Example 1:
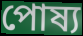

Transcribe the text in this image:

পোষ্য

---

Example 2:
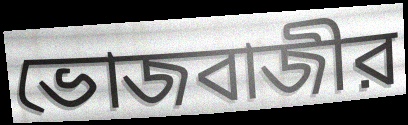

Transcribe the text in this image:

ভোজবাজীর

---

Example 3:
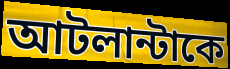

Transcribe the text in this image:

আটলান্টাকে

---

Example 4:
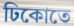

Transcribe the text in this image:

ঢিকোতে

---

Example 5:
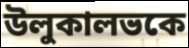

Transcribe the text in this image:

উলুকালভকে